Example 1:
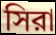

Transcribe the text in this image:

সিরা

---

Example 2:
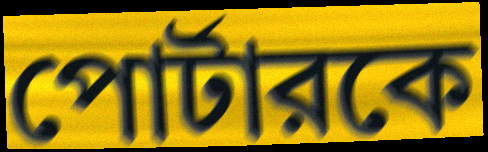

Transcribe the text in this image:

পোর্টারকে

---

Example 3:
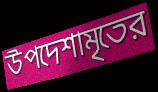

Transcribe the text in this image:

উপদেশামৃতের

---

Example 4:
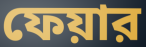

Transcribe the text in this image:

ফেয়ার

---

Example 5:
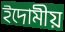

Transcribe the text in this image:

ইদোমীয়